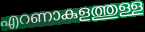
എറണാകുളത്തുള്ള